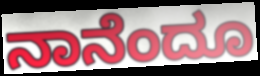
ನಾನೆಂದೂ